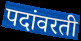
पदांवरती